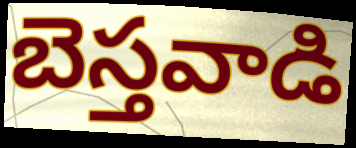
బెస్తవాడి